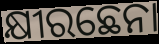
କ୍ଷୀରଛେନା